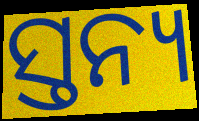
ସ୍ତନ୍ୟ